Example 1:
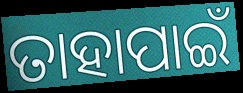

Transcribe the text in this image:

ତାହାପାଇଁ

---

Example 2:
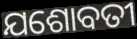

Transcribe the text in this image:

ଯଶୋବତୀ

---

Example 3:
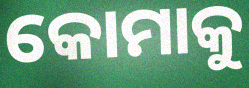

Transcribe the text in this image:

କୋମାକୁ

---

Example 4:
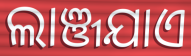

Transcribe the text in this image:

ଲାଞ୍ଜଯାଏ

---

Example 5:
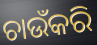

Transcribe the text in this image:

ଚାଉଁକରି